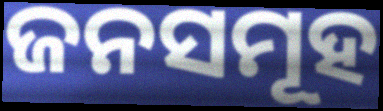
ଜନସମୂହ